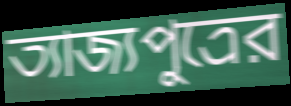
ত্যাজ্যপুত্রের